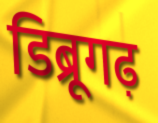
डिब्रूगढ़